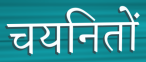
चयनितों